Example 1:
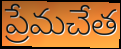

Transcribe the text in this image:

ప్రేమచేత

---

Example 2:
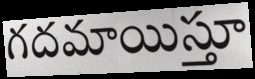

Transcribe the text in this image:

గదమాయిస్తూ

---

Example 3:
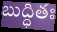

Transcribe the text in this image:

బుద్ధితః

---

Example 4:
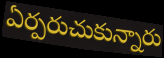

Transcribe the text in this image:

ఏర్పరుచుకున్నారు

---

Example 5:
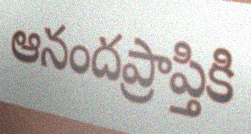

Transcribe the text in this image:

ఆనందప్రాప్తికి